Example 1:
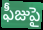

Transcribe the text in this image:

ఫీజుపై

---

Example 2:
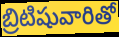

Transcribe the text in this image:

బ్రిటిషువారితో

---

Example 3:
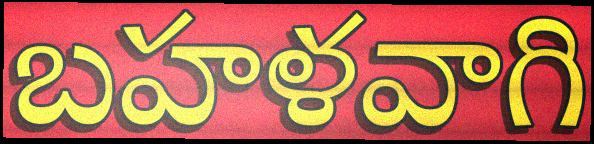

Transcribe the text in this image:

బహళవాగి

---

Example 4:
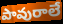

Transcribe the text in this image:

పావురాలే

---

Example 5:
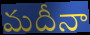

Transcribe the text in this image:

మదీనా